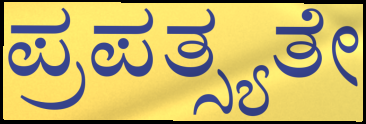
ಪ್ರಪತ್ಸ್ಯತೇ